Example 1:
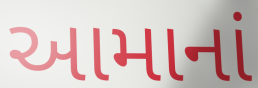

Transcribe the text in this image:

આમાનાં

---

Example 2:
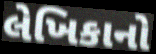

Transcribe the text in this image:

લેખિકાનો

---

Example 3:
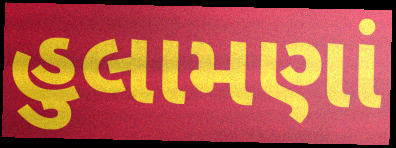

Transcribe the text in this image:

હુલામણાં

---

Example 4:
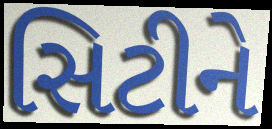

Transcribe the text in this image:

સિટીને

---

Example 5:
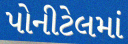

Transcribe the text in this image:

પોનીટેલમાં